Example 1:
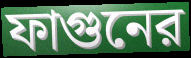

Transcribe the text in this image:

ফাগুনের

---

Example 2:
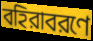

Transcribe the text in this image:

বহিরাবরণে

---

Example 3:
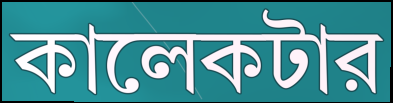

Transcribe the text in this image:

কালেকটার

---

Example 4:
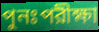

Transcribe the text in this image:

পুনঃপরীক্ষা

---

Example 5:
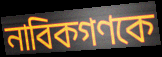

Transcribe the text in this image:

নাবিকগণকে